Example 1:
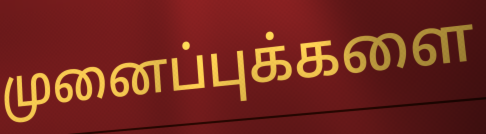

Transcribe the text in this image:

முனைப்புக்களை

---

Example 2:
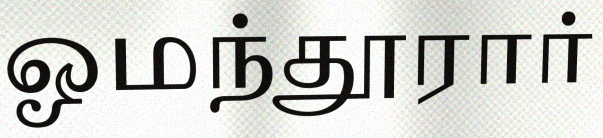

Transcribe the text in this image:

ஓமந்தூரார்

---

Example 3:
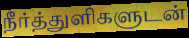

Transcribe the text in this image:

நீர்த்துளிகளுடன்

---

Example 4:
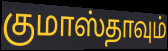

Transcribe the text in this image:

குமாஸ்தாவும்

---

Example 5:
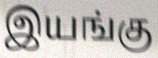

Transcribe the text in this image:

இயங்கு